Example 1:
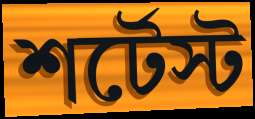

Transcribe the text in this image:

শর্টেস্ট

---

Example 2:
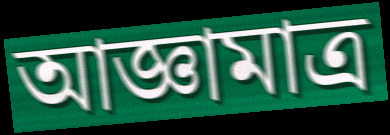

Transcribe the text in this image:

আজ্ঞামাত্র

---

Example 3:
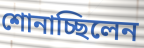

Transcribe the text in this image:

শোনাচ্ছিলেন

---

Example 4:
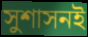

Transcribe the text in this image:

সুশাসনই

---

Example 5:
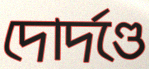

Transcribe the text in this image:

দোর্দণ্ডে